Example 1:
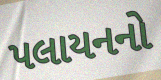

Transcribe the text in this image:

પલાયનનો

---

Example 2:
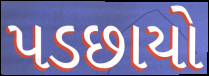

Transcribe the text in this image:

પડછાયો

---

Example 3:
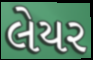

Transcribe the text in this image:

લેયર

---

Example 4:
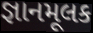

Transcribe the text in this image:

જ્ઞાનમૂલક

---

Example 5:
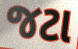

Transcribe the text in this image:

જટા